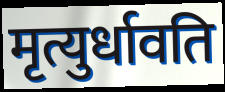
मृत्युर्धावति